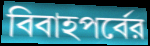
বিবাহপর্বের